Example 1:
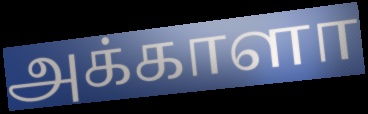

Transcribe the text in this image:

அக்காளா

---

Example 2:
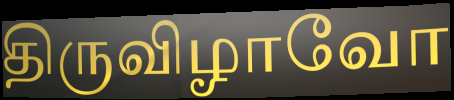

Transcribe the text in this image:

திருவிழாவோ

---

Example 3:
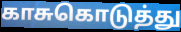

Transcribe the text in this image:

காசுகொடுத்து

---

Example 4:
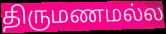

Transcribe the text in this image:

திருமணமல்ல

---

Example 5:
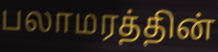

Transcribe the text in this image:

பலாமரத்தின்